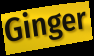
Ginger